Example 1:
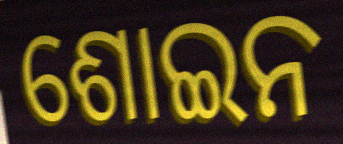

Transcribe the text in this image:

ଶୋଇନ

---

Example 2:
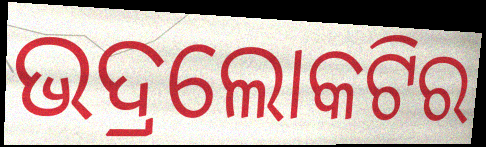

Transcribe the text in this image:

ଭଦ୍ରଲୋକଟିର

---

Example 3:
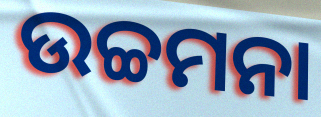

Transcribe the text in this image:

ଉଚ୍ଚମନା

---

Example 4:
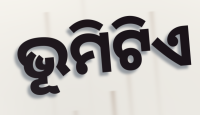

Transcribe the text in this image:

ଭୂମିଟିଏ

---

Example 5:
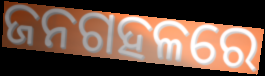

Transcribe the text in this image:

ଜନଗହଳରେ